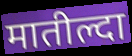
मातील्‍दा